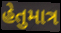
હેતુમાત્ર